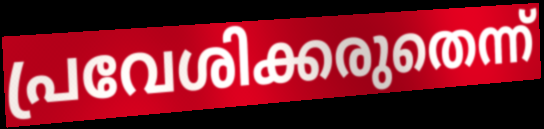
പ്രവേശിക്കരുതെന്ന്